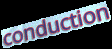
conduction